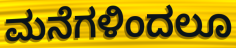
ಮನೆಗಳಿಂದಲೂ